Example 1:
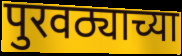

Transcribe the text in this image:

पुरवठ्याच्या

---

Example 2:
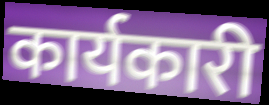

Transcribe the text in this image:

कार्यकारी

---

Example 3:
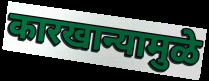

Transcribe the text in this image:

कारखान्यामुळे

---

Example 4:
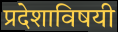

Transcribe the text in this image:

प्रदेशाविषयी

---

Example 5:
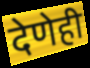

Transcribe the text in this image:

देणेही